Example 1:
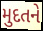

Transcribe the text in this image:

મુદતને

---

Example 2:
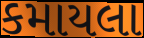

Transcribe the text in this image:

કમાયલા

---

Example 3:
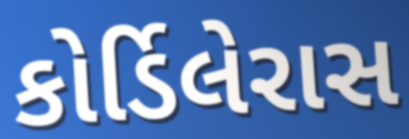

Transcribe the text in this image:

કોર્ડિલેરાસ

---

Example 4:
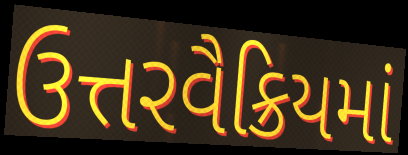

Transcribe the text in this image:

ઉત્તરવૈક્રિયમાં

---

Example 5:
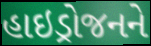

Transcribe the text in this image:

હાઇડ્રોજનને